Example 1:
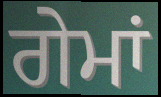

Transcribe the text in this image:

ਗੇਮਾਂ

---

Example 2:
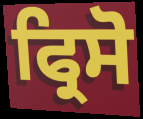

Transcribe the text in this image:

ਫ੍ਰਿਸੋ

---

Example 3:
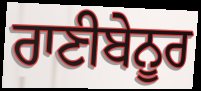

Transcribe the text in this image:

ਰਾਣੀਬੇਨੂਰ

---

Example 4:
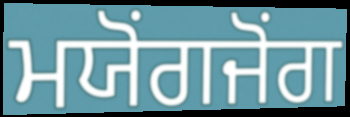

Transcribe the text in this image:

ਮਯੋਂਗਜੋਂਗ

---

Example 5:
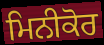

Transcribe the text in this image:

ਮਿਨੀਕੋਰ